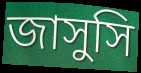
জাসুসি